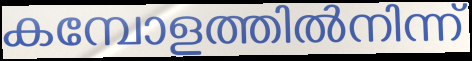
കമ്പോളത്തിൽനിന്ന്